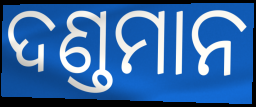
ଦଣ୍ଡମାନ